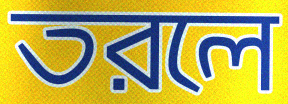
তরলে